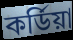
কর্ডিয়া